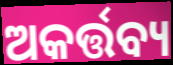
ଅକର୍ତ୍ତବ୍ୟ